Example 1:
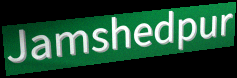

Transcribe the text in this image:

Jamshedpur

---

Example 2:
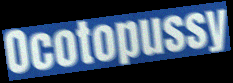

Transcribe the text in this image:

Ocotopussy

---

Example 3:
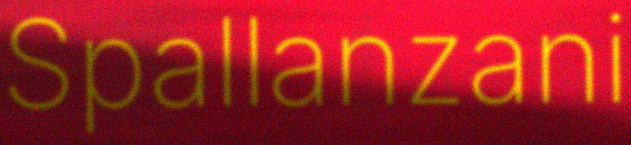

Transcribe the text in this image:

Spallanzani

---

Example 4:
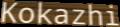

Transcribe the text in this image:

Kokazhi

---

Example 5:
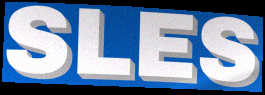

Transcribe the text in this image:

SLES